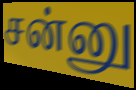
சன்னு